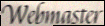
Webmaster